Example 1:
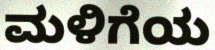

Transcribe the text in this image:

ಮಳಿಗೆಯ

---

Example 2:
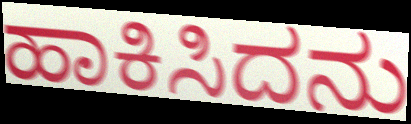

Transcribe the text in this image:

ಹಾಕಿಸಿದನು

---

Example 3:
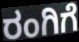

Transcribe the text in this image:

ರಂಗಿಗೆ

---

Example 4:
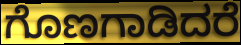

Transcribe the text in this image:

ಗೊಣಗಾಡಿದರೆ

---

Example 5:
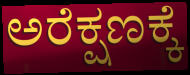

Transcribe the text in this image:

ಅರೆಕ್ಷಣಕ್ಕೆ